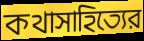
কথাসাহিত্যের